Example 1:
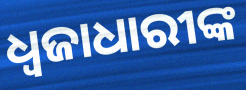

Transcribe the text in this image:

ଧ୍ୱଜାଧାରୀଙ୍କ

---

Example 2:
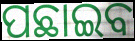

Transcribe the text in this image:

ପଛାଇବ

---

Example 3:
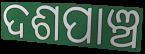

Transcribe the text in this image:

ଦଶପାଞ୍ଚ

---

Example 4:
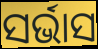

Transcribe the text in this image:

ସର୍ଭାସ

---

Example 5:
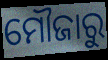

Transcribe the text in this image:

ମୌଜାରୁ